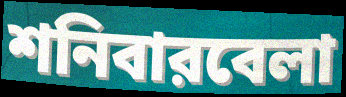
শনিবারবেলা